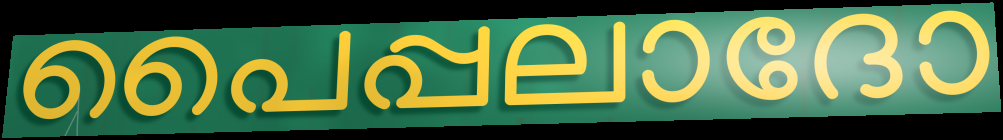
പൈപ്പലാദോ